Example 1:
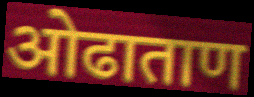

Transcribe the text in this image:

ओढाताण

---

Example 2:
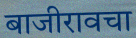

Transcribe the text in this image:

बाजीरावचा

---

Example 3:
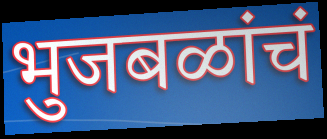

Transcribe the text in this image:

भुजबळांचं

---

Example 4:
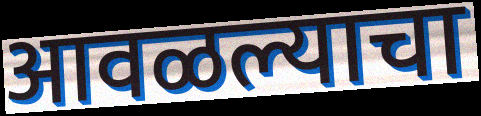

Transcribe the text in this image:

आवळल्याचा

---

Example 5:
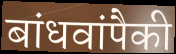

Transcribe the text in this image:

बांधवांपैकी